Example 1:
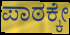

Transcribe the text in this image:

ಪಾಠಕ್ಕೇ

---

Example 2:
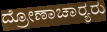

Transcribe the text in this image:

ದ್ರೋಣಾಚಾರ‍್ಯರು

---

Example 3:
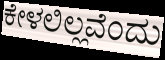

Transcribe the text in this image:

ಕೇಳಲಿಲ್ಲವೆಂದು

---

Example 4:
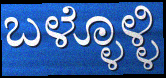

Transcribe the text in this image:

ಬಳ್ಳೊಳ್ಳಿ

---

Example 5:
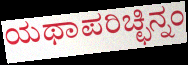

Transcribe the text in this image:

ಯಥಾಪರಿಚ್ಛಿನ್ನಂ